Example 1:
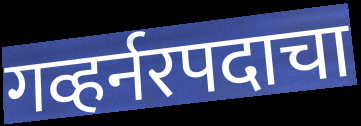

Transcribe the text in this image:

गव्हर्नरपदाचा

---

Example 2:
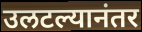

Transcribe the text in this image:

उलटल्यानंतर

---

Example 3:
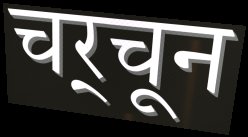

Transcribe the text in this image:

चर्चून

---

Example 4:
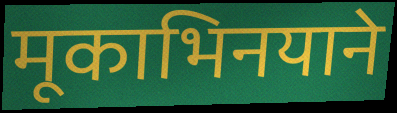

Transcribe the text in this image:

मूकाभिनयाने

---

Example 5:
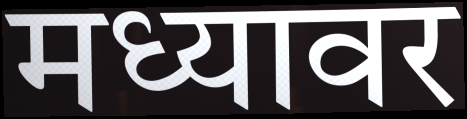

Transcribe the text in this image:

मध्यावर